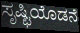
ಸೃಷ್ಟಿಯೊಡನೆ